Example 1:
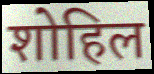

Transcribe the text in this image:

शोहिल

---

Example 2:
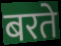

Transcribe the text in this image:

बरते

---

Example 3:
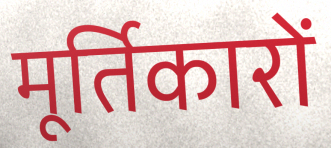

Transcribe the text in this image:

मूर्तिकारों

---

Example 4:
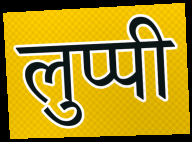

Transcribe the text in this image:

लुप्पी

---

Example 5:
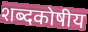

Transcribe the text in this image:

शब्दकोषीय